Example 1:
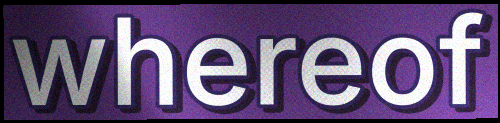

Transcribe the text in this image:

whereof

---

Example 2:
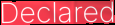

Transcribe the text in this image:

Declared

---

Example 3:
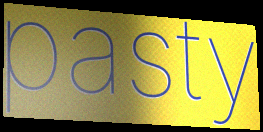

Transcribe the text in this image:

pasty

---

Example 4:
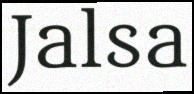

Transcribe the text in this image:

Jalsa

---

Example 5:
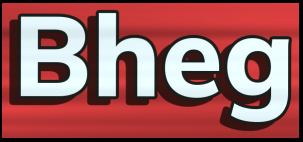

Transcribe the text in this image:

Bheg